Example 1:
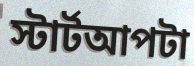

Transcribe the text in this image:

স্টার্টআপটা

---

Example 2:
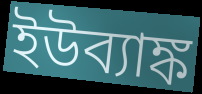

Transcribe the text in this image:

ইউব্যাঙ্ক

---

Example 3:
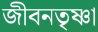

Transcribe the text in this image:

জীবনতৃষ্ণা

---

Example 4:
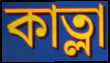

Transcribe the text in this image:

কাত্লা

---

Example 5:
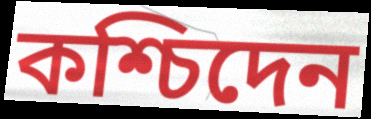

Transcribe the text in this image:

কশ্চিদেন